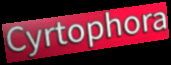
Cyrtophora